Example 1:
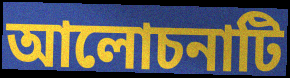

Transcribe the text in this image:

আলোচনাটি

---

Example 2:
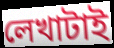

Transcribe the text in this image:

লেখাটাই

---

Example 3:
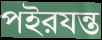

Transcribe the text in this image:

পইরযন্ত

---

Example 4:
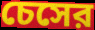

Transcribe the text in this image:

চেসের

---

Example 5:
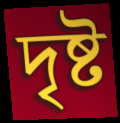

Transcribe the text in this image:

দৃষ্ট